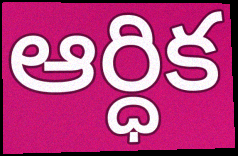
ఆర్ధిక